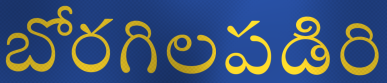
బోరగిలపడిరి